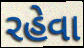
રહેવા